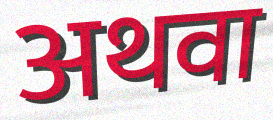
अथवा